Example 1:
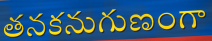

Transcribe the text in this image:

తనకనుగుణంగా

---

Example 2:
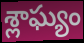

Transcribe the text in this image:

శ్లాఘ్యం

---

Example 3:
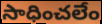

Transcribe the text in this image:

సాధించలేం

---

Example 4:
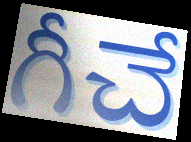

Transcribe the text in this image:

గీచే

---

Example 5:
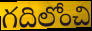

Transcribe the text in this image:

గదిలోంచి